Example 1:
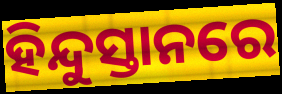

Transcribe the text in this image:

ହିନ୍ଦୁସ୍ତାନରେ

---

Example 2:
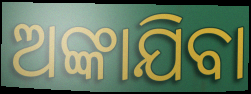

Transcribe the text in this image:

ଅଙ୍କାଯିବା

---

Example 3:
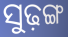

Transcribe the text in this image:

ସୁଢ଼ଙ୍ଗ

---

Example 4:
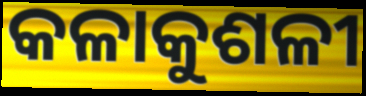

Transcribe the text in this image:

କଳାକୁଶଳୀ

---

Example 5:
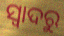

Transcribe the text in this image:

ସ୍ବାଦରୁ